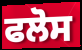
ਫਲੋਸ